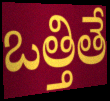
ఒత్తితే